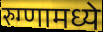
रुग्णामध्ये